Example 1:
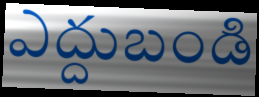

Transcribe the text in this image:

ఎద్దుబండి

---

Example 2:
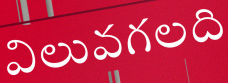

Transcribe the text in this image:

విలువగలది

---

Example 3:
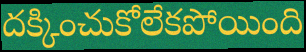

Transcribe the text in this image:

దక్కించుకోలేకపోయింది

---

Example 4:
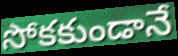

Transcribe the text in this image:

సోకకుండానే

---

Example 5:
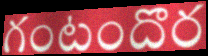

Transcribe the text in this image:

గంటందొర